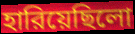
হারিয়েছিলো